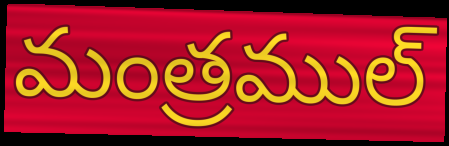
మంత్రముల్